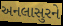
અનલાસુરને